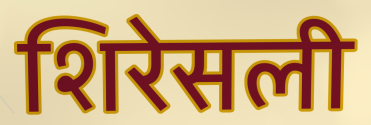
शिरेसली